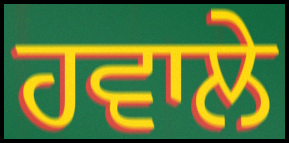
ਹਵਾਲੇ